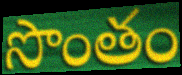
సొంతం